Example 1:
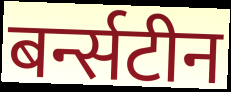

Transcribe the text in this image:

बर्न्सटीन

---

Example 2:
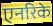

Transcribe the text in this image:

एनरिके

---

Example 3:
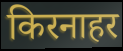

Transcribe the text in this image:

किरनाहर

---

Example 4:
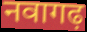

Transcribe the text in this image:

नवागढ़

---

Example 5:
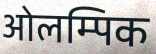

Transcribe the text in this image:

ओलम्पिक